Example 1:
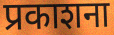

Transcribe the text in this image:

प्रकाशना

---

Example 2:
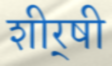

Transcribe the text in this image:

शीर्षी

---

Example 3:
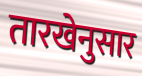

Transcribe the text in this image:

तारखेनुसार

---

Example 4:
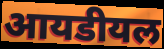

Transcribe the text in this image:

आयडीयल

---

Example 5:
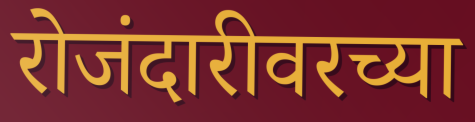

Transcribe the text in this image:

रोजंदारीवरच्या